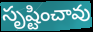
సృష్టించావు